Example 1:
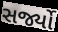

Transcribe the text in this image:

સર્જ્યો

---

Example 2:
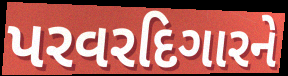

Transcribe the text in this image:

પરવરદિગારને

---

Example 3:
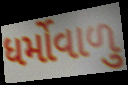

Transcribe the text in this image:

ધર્મોવાળુ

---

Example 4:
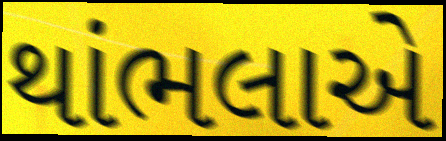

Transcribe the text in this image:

થાંભલાએ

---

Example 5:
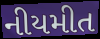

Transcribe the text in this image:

નીયમીત